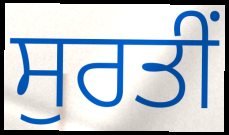
ਸੁਰਤੀਂ